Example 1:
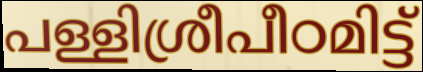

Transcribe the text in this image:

പള്ളിശ്രീപീഠമിട്ട്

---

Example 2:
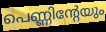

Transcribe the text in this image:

പെണ്ണിന്റേയും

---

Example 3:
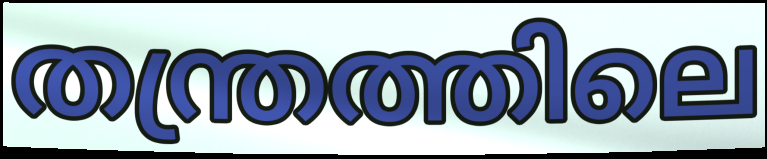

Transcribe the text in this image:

തന്ത്രത്തിലെ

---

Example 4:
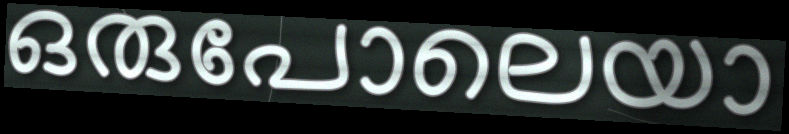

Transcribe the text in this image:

ഒരുപോലെയാ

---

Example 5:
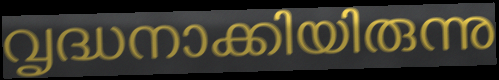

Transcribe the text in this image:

വൃദ്ധനാക്കിയിരുന്നു